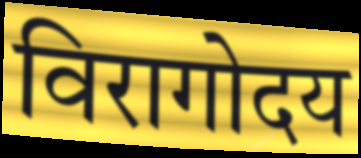
विरागोदय